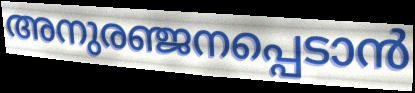
അനുരഞ്ജനപ്പെടാൻ